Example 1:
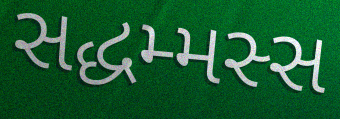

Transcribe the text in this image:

સદ્ધમ્મસ્સ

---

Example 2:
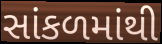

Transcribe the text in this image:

સાંકળમાંથી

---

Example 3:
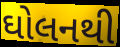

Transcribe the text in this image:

ઘોલનથી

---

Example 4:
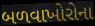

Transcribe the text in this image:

બળવાખોરોના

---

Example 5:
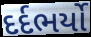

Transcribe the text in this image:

દર્દભર્યો